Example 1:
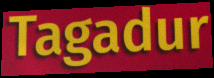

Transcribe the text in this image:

Tagadur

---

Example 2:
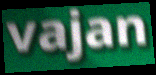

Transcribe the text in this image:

vajan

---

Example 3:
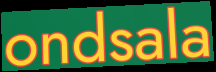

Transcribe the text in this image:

ondsala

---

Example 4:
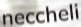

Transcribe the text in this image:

neccheli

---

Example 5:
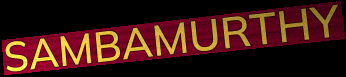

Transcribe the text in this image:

SAMBAMURTHY